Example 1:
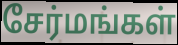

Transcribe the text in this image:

சேர்மங்கள்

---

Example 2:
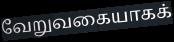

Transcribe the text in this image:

வேறுவகையாகக்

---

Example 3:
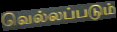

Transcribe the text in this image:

வெல்லப்படும்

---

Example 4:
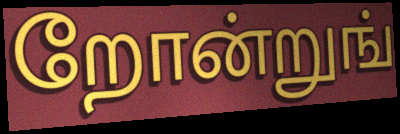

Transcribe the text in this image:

றோன்றுங்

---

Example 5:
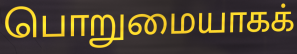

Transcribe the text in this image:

பொறுமையாகக்